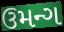
ઉમન્ગ